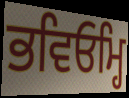
ਭਵਿਓਮ੍ਹਿ